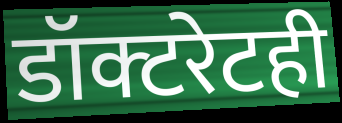
डॉक्‍टरेटही